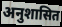
अनुशासित